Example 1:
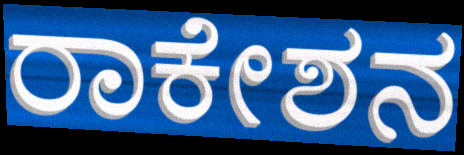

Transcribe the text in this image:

ರಾಕೇಶನ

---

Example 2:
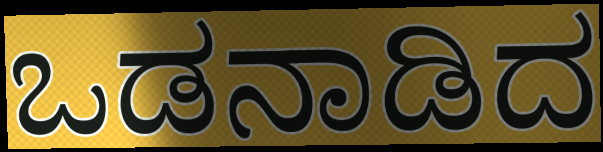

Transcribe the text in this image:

ಒಡನಾಡಿದ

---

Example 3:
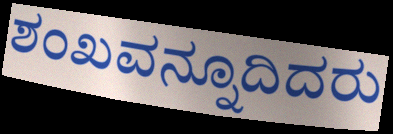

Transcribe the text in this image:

ಶಂಖವನ್ನೂದಿದರು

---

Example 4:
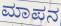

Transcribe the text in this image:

ಮಾಪನ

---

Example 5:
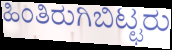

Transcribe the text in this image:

ಹಿಂತಿರುಗಿಬಿಟ್ಟರು